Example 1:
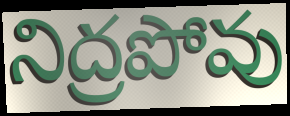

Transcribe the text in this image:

నిద్రపోవు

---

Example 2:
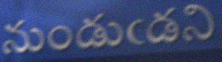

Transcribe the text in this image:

నుండుఁడని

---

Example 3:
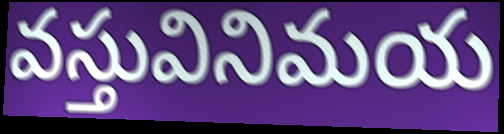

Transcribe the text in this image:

వస్తువినిమయ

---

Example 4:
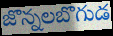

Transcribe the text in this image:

జొన్నలబొగుడ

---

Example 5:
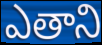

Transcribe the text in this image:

ఎతాని